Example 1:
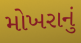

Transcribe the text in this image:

મોખરાનું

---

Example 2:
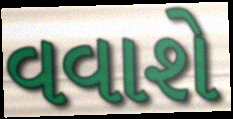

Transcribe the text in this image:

વવાશે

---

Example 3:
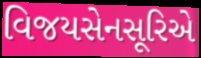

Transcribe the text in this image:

વિજયસેનસૂરિએ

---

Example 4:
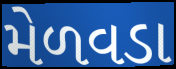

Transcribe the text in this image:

મેળવડા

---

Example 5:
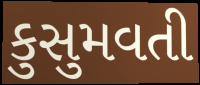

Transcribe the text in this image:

કુસુમવતી